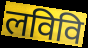
लविवि